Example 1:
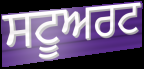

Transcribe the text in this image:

ਸਟੂਅਰਟ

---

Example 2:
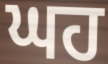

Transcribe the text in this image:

ਘਹ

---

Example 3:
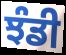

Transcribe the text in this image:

ਝੰਡੀ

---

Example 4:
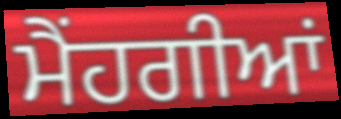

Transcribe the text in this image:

ਮੈਂਹਗੀਆਂ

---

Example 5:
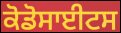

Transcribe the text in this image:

ਕੋਡੋਸਾਈਟਸ